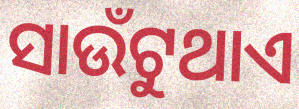
ସାଉଁଟୁଥାଏ